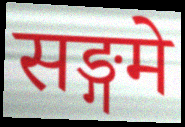
सङ्गमे